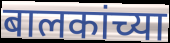
बालकांच्या